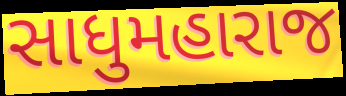
સાધુમહારાજ